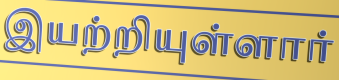
இயற்றியுள்ளார்